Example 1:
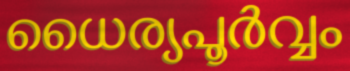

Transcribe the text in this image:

ധൈര്യപൂർവ്വം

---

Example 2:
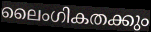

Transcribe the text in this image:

ലൈംഗികതക്കും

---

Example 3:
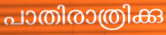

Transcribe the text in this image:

പാതിരാത്രിക്കു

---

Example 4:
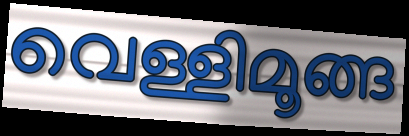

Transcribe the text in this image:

വെള്ളിമൂങ്ങ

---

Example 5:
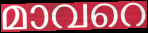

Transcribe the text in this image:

മാവറെ